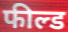
फील्ड